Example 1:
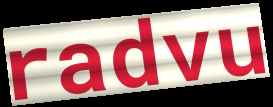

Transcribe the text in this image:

radvu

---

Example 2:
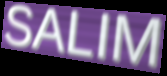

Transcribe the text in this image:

SALIM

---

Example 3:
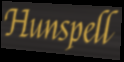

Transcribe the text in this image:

Hunspell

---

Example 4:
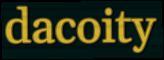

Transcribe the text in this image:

dacoity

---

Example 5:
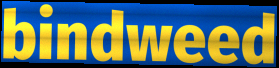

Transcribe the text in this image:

bindweed